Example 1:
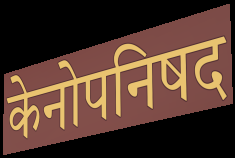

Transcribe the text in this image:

केनोपनिषद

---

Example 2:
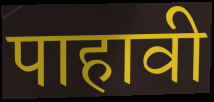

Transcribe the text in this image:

पाहावी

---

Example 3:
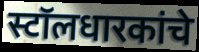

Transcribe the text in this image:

स्टॉलधारकांचे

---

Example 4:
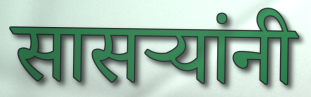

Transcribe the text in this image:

सासर्‍यांनी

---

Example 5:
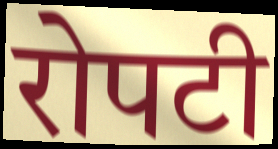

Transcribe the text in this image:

रोपटी